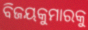
ବିଜୟକୁମାରକୁ